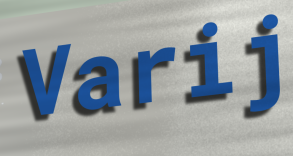
Varij